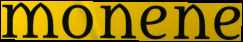
monene